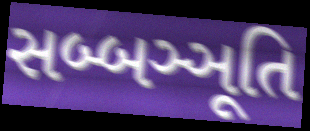
સબ્બઞ્ઞૂતિ